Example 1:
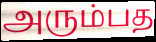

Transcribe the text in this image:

அரும்பத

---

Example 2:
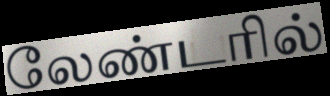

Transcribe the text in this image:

லேண்டரில்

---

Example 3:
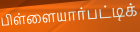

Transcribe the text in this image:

பிள்ளையார்பட்டிக்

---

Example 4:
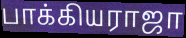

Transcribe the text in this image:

பாக்கியராஜா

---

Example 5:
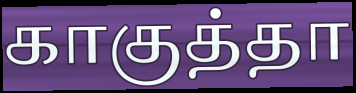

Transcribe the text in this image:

காகுத்தா